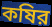
কষির